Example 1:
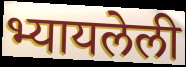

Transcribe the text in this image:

भ्यायलेली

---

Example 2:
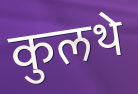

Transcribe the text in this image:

कुलथे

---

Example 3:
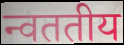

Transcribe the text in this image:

न्वततीय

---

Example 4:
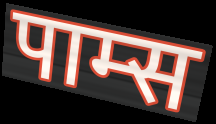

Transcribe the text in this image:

पाम्स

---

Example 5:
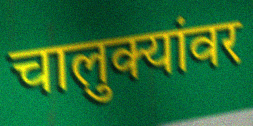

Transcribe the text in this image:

चालुक्यांवर